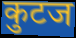
कुटज